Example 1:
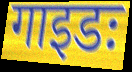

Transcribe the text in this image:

गाइडः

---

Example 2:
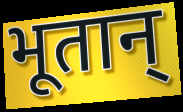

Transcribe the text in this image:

भूतान्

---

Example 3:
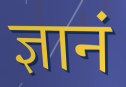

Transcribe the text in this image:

ज्ञानं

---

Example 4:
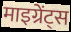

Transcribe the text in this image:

माइग्रेंट्स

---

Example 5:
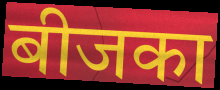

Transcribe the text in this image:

बीजका